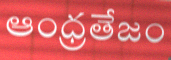
ఆంధ్రతేజం